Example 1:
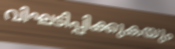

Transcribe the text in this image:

വിഘടിപ്പിക്കുകയും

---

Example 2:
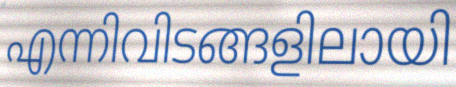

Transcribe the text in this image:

എന്നിവിടങ്ങളിലായി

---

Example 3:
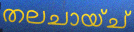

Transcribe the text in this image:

തലചായ്ച്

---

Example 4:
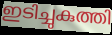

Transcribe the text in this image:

ഇടിച്ചുകുത്തി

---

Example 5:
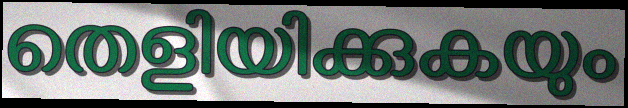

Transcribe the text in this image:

തെളിയിക്കുകയും